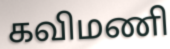
கவிமணி